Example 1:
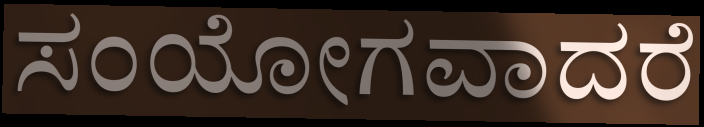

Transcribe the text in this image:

ಸಂಯೋಗವಾದರೆ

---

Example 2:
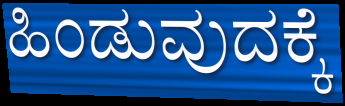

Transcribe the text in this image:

ಹಿಂಡುವುದಕ್ಕೆ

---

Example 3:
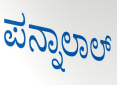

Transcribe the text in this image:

ಪನ್ನಾಲಾಲ್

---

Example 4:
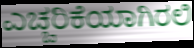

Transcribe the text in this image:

ಎಚ್ಚರಿಕೆಯಾಗಿರಲಿ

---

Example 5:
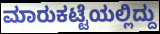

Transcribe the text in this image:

ಮಾರುಕಟ್ಟೆಯಲ್ಲಿದ್ದು